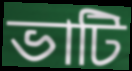
ভাটি